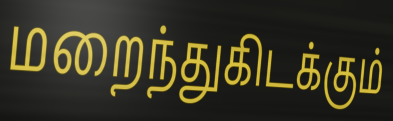
மறைந்துகிடக்கும்